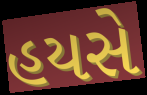
હયસે